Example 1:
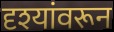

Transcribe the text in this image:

दृश्यांवरून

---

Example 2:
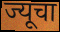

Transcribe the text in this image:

ज्यूचा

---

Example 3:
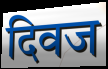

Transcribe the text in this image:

दिवज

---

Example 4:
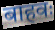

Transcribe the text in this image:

बाहवः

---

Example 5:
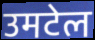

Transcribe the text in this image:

उमटेल